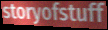
storyofstuff